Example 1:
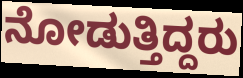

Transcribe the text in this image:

ನೋಡುತ್ತಿದ್ದರು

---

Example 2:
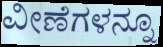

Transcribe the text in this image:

ವೀಣೆಗಳನ್ನೂ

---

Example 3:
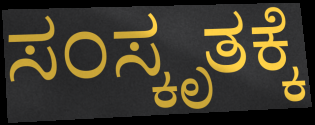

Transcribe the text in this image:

ಸಂಸ್ಕೃತಕ್ಕೆ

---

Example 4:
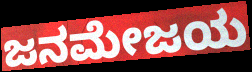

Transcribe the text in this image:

ಜನಮೇಜಯ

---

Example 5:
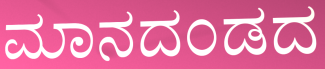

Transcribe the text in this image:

ಮಾನದಂಡದ